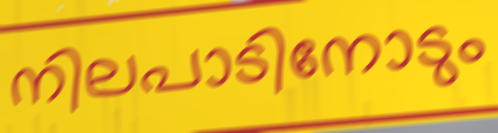
നിലപാടിനോടും